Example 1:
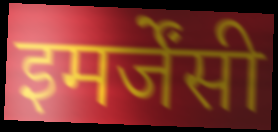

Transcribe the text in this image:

इमर्जेंसी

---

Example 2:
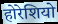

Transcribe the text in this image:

होरेशियो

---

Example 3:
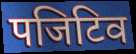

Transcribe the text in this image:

पजिटिव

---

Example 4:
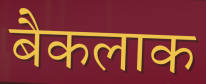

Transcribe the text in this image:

बैकलाक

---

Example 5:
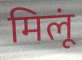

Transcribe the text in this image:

मिलूं